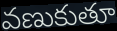
వణుకుతూ